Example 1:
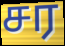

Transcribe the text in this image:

சர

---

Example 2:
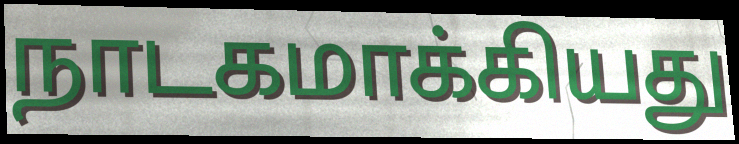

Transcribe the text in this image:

நாடகமாக்கியது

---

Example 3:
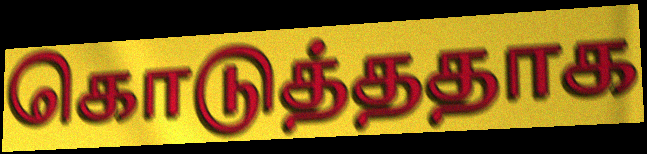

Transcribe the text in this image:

கொடுத்ததாக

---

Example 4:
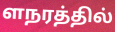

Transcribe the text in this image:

ளநரத்தில்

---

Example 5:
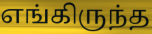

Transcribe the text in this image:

எங்கிருந்த